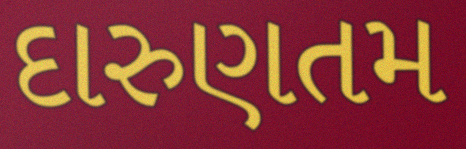
દારુણતમ